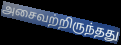
அசைவற்றிருந்தது